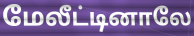
மேலீட்டினாலே